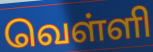
வெள்ளி